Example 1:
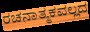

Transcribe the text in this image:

ರಚನಾತ್ಮಕವಲ್ಲದ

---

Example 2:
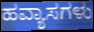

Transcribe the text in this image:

ಹವ್ಯಾಸಗಳು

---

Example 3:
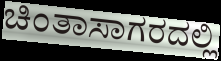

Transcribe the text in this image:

ಚಿಂತಾಸಾಗರದಲ್ಲಿ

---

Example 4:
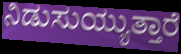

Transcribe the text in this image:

ನಿಡುಸುಯ್ಯುತ್ತಾರೆ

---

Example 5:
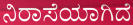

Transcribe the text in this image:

ನಿರಾಸೆಯಾಗಿದೆ